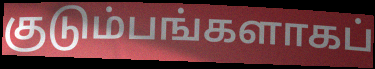
குடும்பங்களாகப்